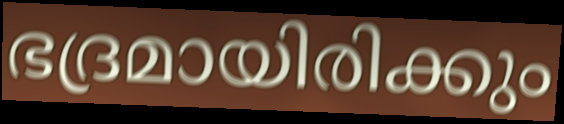
ഭദ്രമായിരിക്കും